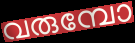
വരുമ്പോ